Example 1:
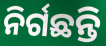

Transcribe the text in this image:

ନିର୍ଗଛନ୍ତି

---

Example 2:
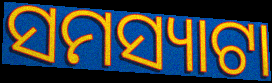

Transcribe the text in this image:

ସମସ୍ୟାଟା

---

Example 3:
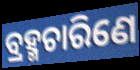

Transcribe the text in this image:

ବ୍ରହ୍ମଚାରିଣେ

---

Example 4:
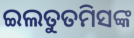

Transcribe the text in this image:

ଇଲତୁତମିସଙ୍କ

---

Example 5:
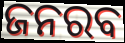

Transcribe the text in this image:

ଜନରବ